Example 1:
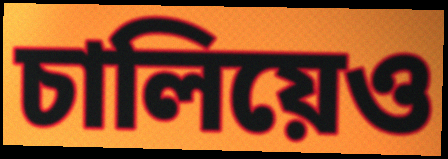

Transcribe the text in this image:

চালিয়েও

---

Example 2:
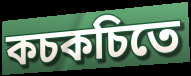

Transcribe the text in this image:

কচকচিতে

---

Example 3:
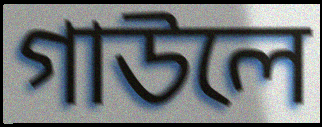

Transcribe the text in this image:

গাউলে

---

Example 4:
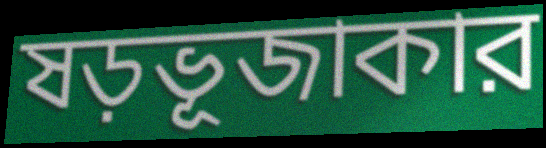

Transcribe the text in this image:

ষড়ভূজাকার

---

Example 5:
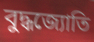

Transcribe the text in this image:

বুদ্ধজ্যোতি